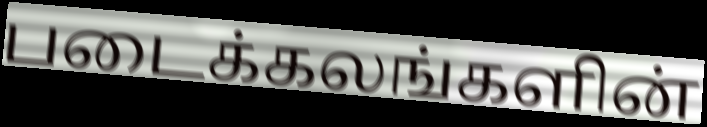
படைக்கலங்களின்